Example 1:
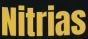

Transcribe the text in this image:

Nitrias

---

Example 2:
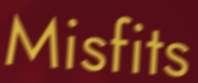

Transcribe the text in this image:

Misfits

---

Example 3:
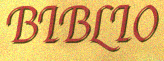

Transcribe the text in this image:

BIBLIO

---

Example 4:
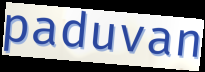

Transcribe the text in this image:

paduvan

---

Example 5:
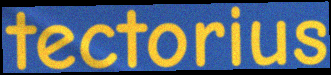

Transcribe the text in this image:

tectorius